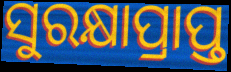
ସୁରକ୍ଷାପ୍ରାପ୍ତ